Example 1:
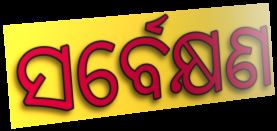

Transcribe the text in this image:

ସର୍ବେକ୍ଷଣ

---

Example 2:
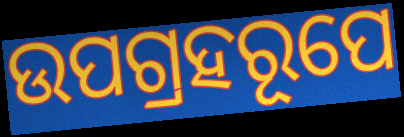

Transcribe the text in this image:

ଉପଗ୍ରହରୂପେ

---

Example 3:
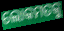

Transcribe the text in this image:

ଲୋକମତକୁ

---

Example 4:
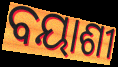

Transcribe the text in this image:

ବୟାଶୀ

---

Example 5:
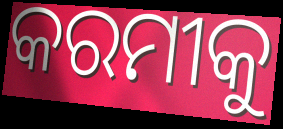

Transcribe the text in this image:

କରମୀକୁ